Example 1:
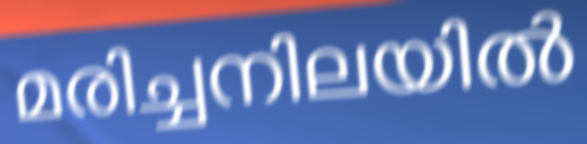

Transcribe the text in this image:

മരിച്ചനിലയിൽ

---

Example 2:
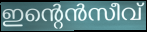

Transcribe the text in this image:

ഇന്റെൻസീവ്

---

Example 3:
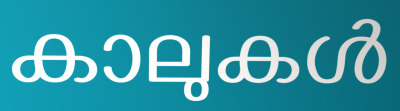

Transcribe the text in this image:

കാലുകൾ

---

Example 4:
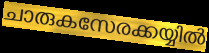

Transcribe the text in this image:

ചാരുകസേരക്കയ്യിൽ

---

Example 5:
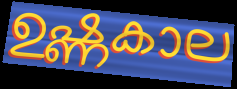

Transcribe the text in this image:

ഉഷ്ണകാല